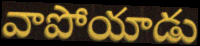
వాపోయాడు